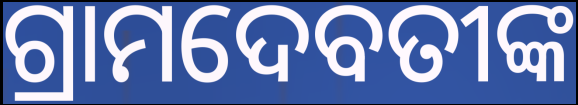
ଗ୍ରାମଦେବତୀଙ୍କ